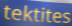
tektites